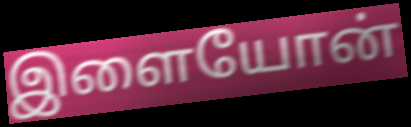
இளையோன்